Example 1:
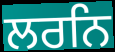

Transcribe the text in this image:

ਲਰਨਿ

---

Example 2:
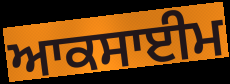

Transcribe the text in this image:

ਆਕਸਾਈਮ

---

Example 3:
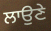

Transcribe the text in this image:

ਲਾਉਣੇ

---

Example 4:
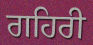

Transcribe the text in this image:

ਗਹਿਰੀ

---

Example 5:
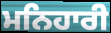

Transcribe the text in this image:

ਮਨਿਹਾਰੀ